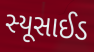
સ્યૂસાઈડ